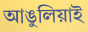
আঙুলিয়াই